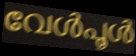
വേൾപൂൾ